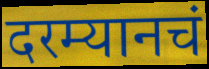
दरम्यानचं